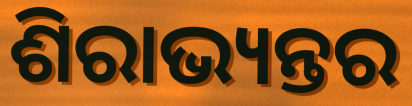
ଶିରାଭ୍ୟନ୍ତର